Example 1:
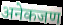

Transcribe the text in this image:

अनेकजण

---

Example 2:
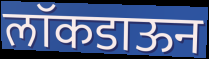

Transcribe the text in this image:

लॉकडाऊन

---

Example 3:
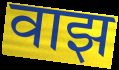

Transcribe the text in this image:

वाझ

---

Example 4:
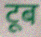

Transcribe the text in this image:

टूब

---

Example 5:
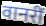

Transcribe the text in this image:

वानरीं